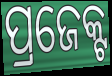
ପ୍ରଜେକ୍ଟ